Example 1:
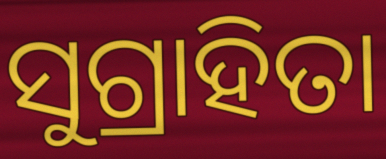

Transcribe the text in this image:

ସୁଗ୍ରାହିତା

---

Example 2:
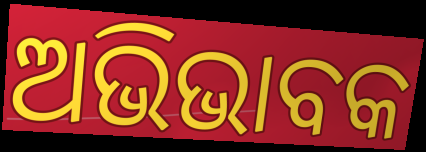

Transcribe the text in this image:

ଅଭିଭାବକ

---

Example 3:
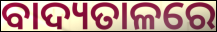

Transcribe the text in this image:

ବାଦ୍ୟତାଳରେ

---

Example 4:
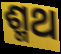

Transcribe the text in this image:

ଶ୍ମଥ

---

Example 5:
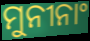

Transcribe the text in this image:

ମୁନୀନାଂ